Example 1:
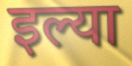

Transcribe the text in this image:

इल्या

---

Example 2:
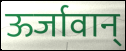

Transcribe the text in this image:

ऊर्जावान्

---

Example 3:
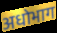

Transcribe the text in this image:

अधोभाग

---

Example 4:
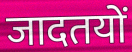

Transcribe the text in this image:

जादतयों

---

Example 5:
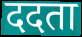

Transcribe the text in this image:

ददता